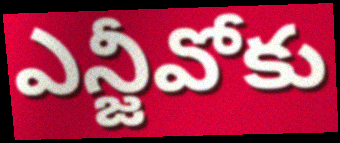
ఎన్జీవోకు